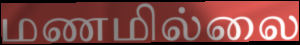
மணமில்லை